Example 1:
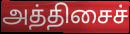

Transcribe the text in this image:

அத்திசைச்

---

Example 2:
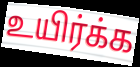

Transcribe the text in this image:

உயிர்க்க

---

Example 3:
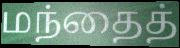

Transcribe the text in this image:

மந்தைத்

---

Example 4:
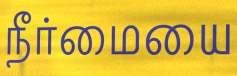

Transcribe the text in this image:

நீர்மையை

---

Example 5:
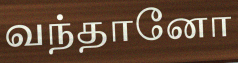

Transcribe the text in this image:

வந்தானோ